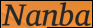
Nanba